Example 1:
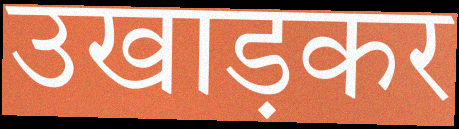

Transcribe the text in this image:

उखाड़कर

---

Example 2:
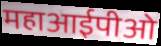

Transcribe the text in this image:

महाआईपीओ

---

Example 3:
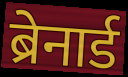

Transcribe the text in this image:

ब्रेनार्ड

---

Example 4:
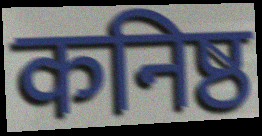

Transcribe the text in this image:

कनिष्ठ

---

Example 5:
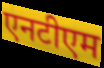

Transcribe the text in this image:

एनटीएम